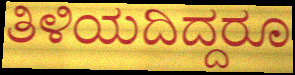
ತಿಳಿಯದಿದ್ದರೂ